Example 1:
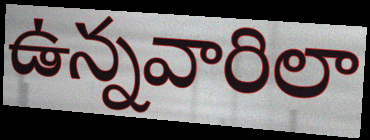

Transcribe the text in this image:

ఉన్నవారిలా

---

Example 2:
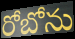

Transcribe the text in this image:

రోబోను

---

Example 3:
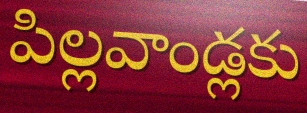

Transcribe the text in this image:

పిల్లవాండ్లకు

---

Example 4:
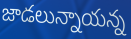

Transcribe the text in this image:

జాడలున్నాయన్న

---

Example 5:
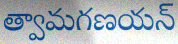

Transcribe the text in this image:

త్వామగణయన్